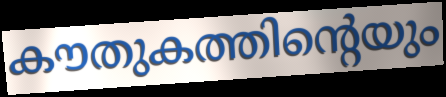
കൗതുകത്തിന്റെയും